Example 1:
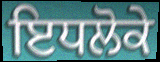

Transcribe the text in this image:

ਇਧਲੋਕੇ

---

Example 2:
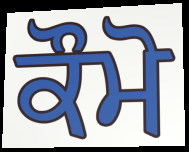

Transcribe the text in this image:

ਕੌਮੋ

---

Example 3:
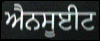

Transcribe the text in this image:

ਐਨਸੂਈਟ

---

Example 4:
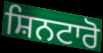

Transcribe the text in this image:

ਸ਼ਿਨਟਾਰੋ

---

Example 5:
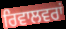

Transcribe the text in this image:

ਰਿਵਾਲਵਰਾਂ